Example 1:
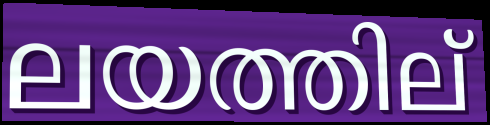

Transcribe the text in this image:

ലയത്തില്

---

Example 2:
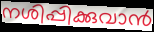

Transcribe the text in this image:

നശിപ്പിക്കുവാൻ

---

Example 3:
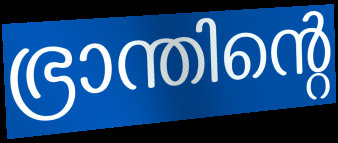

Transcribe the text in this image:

ഭ്രാന്തിന്റെ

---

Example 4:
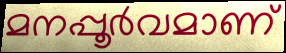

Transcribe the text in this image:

മനപ്പൂർവമാണ്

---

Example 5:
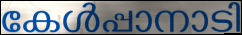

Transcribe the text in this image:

കേൾപ്പാനാടി